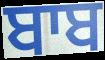
ਬਾਬ